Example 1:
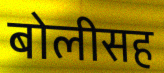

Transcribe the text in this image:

बोलीसह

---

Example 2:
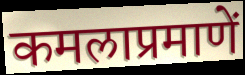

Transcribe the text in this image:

कमलाप्रमाणें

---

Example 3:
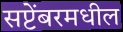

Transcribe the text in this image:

सप्टेंबरमधील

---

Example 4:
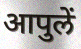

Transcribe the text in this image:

आपुलें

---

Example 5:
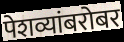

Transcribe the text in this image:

पेशव्यांबरोबर